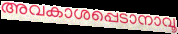
അവകാശപ്പെടാനാവൂ